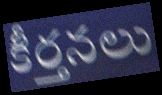
కీర్తనలు